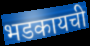
भडकायची